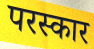
परस्कार